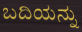
ಬದಿಯನ್ನು